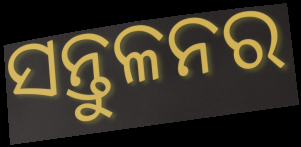
ସନ୍ତୁଳନର